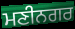
ਮਣੀਨਗਰ